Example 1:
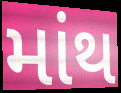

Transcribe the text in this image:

માંથ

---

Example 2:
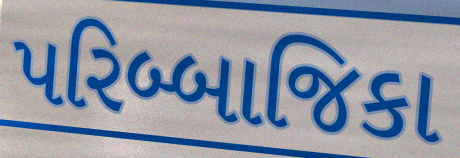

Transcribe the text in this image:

પરિબ્બાજિકા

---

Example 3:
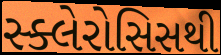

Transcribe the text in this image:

સ્ક્લેરોસિસથી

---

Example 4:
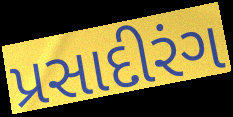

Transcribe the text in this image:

પ્રસાદીરંગ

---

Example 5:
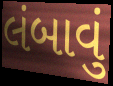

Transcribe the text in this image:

લંબાવું